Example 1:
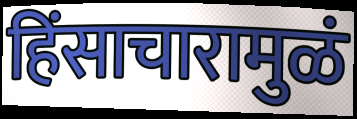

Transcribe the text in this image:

हिंसाचारामुळं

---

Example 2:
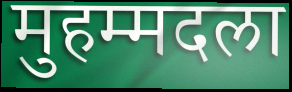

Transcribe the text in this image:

मुहम्मदला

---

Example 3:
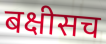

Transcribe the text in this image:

बक्षीसच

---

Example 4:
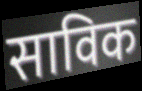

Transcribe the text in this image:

साविक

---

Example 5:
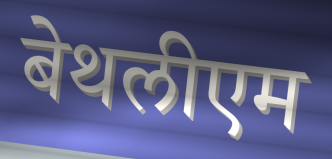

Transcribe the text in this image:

बेथलीएम